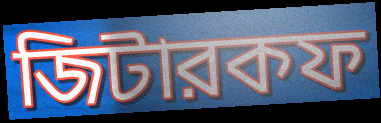
জিটারকফ